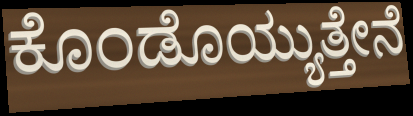
ಕೊಂಡೊಯ್ಯುತ್ತೇನೆ